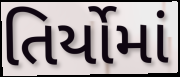
તિર્યોમાં